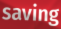
saving